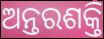
ଅନ୍ତରଶକ୍ତି